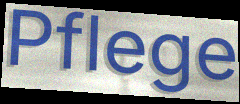
Pflege